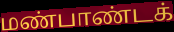
மண்பாண்டக்